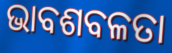
ଭାବଶବଳତା